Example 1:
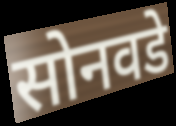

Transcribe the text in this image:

सोनवडे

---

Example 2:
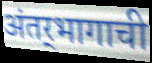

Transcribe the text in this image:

अंतर्भागाची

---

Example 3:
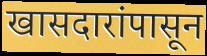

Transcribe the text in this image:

खासदारांपासून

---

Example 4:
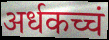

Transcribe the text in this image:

अर्धकच्चं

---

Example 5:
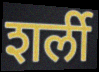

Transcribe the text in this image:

शर्ली